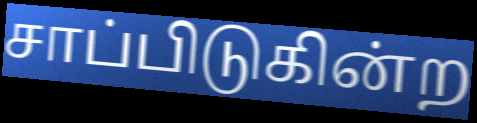
சாப்பிடுகின்ற